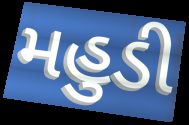
મહુડી